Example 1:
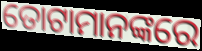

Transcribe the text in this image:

ତୋଟାମାନଙ୍କରେ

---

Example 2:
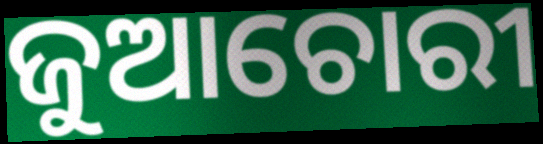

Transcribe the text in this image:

ଜୁଆଚୋରୀ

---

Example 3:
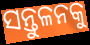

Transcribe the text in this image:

ସନ୍ତୁଳନକୁ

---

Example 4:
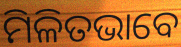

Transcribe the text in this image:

ମିଳିତଭାବେ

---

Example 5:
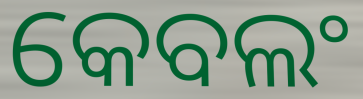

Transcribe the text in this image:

କେବଲଂ